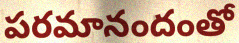
పరమానందంతో